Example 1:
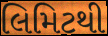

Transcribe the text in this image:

લિમિટથી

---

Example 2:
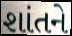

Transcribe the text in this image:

શાંતને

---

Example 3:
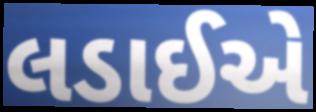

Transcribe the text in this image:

લડાઈએ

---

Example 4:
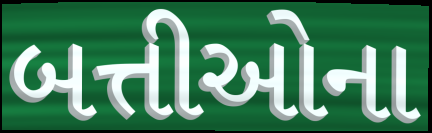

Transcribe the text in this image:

બત્તીઓના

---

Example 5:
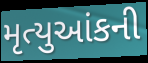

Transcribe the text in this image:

મૃત્યુઆંકની